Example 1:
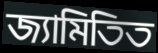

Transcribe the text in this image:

জ্যামিতিত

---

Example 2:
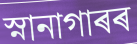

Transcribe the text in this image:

স্নানাগাৰৰ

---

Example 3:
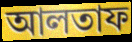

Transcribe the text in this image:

আলতাফ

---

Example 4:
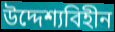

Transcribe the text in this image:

উদ্দেশ্যবিহীন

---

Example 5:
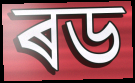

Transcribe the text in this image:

ৰড